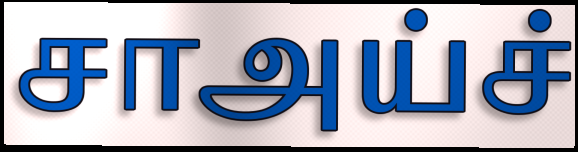
சாஅய்ச்